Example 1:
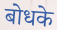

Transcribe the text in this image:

बोधके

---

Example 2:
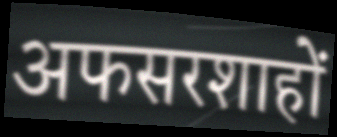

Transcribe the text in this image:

अफसरशाहों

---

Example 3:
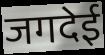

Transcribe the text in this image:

जगदेई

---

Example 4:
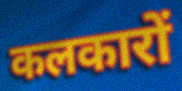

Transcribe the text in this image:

कलकारों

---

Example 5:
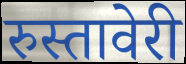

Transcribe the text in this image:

रुस्तावेरी